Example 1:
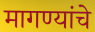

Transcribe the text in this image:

मागण्यांचे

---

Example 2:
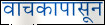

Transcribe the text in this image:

वाचकापासून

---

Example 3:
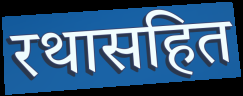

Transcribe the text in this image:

रथासहित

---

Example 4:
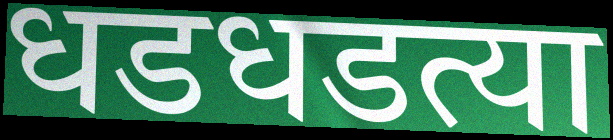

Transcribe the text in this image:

धडधडत्या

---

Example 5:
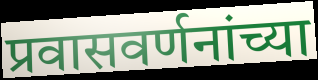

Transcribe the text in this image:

प्रवासवर्णनांच्या